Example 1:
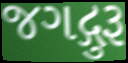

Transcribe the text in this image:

જગદ્ગુરૂ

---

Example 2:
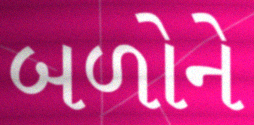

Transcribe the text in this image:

બળોને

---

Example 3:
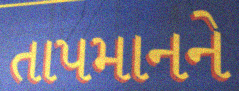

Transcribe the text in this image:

તાપમાનને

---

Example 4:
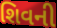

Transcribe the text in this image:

શિવની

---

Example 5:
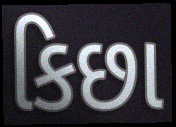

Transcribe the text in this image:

કિછા